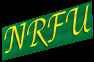
NRFU